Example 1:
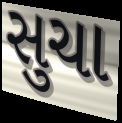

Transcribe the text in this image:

સુચા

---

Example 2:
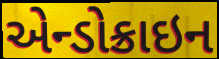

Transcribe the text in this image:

એન્ડોક્રાઇન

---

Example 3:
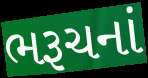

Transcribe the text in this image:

ભરૂચનાં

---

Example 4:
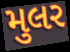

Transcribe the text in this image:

મુલર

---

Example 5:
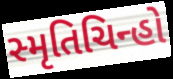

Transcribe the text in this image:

સ્મૃતિચિન્હો